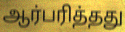
ஆர்பரித்தது